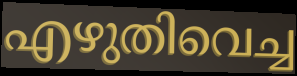
എഴുതിവെച്ച